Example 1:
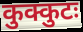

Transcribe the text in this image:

कुक्कुटः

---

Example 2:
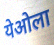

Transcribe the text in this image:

येओला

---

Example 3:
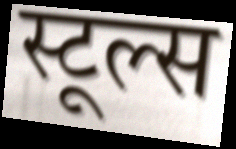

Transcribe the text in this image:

स्टूल्स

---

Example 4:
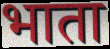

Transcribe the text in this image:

भाता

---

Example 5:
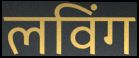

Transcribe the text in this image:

लविंग